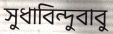
সুধাবিন্দুবাবু